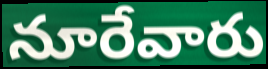
నూరేవారు